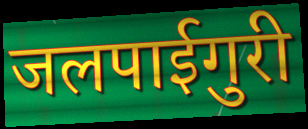
जलपाईगुरी